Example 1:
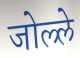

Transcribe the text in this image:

जोल्ले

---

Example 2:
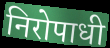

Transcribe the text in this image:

निरोपाधी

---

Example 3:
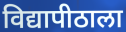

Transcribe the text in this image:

विद्यापीठाला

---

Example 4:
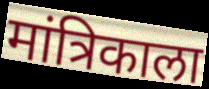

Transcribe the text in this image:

मांत्रिकाला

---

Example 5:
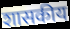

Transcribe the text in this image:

शासकीय